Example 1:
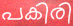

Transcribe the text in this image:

പകിരി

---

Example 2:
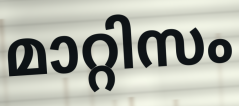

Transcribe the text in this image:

മാറ്റിസം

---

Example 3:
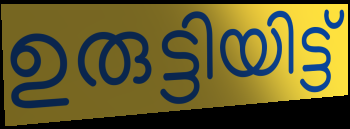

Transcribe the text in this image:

ഉരുട്ടിയിട്ട്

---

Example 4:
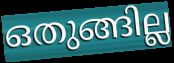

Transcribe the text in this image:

ഒതുങ്ങില്ല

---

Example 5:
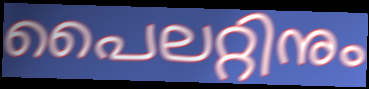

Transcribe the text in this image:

പൈലറ്റിനും